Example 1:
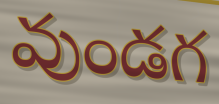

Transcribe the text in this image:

వుండగ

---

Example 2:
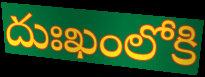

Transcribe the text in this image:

దుఃఖంలోకి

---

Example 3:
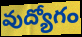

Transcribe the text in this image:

వుద్యోగం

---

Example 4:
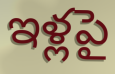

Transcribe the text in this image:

ఇళ్లపై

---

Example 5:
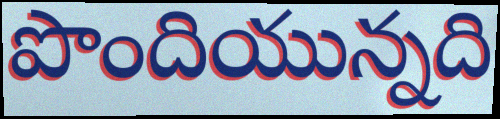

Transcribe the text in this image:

పొందియున్నది